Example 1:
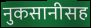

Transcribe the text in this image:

नुकसानीसह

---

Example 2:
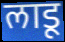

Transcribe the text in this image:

लाडू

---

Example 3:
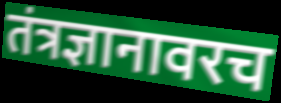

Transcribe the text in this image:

तंत्रज्ञानावरच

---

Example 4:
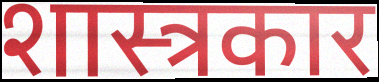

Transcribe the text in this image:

शास्त्रकार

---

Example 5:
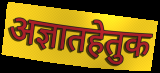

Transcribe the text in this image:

अज्ञातहेतुक